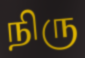
நிரு